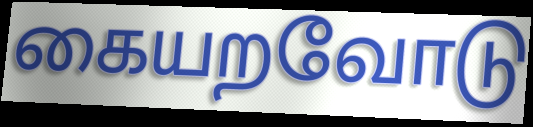
கையறவோடு